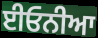
ਈਓਨੀਆ